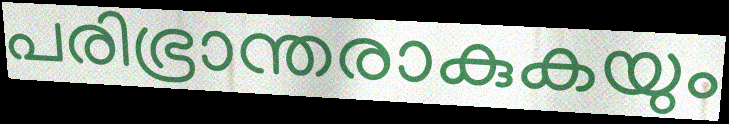
പരിഭ്രാന്തരാകുകയും